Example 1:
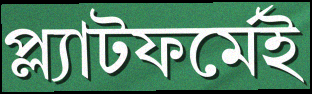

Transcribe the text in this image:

প্ল্যাটফর্মেই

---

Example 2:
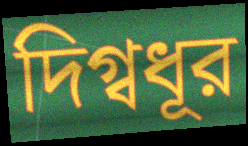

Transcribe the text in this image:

দিগ্বধূর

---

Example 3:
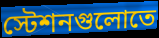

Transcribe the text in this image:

স্টেশনগুলোতে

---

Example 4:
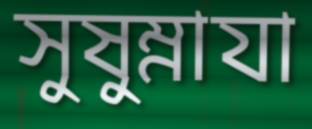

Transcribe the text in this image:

সুষুম্নাযা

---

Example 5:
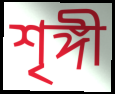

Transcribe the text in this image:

শৃঙ্গী